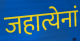
जहात्येनां